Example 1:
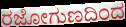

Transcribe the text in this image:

ರಜೋಗುಣದಿಂದ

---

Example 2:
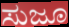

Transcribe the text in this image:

ಸುಜೂ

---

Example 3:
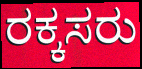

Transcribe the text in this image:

ರಕ್ಕಸರು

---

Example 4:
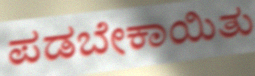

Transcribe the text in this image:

ಪಡಬೇಕಾಯಿತು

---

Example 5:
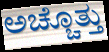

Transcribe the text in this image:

ಅಚ್ಚೊತ್ತು